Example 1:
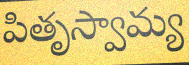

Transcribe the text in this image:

పితృస్వామ్య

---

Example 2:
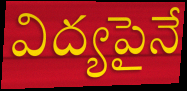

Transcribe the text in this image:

విద్యపైనే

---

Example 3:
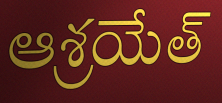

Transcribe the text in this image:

ఆశ్రయేత్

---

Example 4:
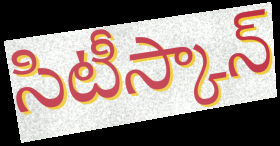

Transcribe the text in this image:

సిటీస్కాన్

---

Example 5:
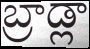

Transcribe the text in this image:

బ్రాడ్లా